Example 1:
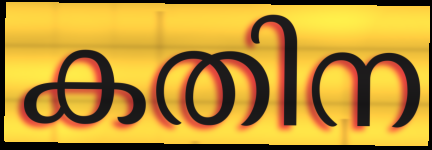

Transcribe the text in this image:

കതിന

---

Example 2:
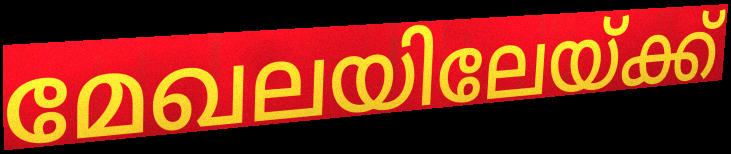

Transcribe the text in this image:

മേഖലയിലേയ്ക്ക്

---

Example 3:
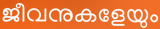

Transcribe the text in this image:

ജീവനുകളേയും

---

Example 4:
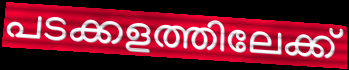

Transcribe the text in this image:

പടക്കളത്തിലേക്ക്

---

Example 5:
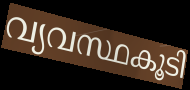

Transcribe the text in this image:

വ്യവസ്ഥകൂടി